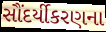
સૌંદર્યીકરણના